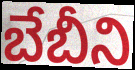
బేబీని